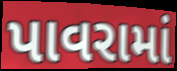
પાવરામાં